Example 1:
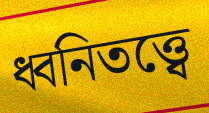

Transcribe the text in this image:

ধ্বনিতত্ত্বে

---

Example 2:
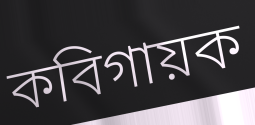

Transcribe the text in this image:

কবিগায়ক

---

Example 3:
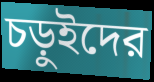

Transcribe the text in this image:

চড়ুইদের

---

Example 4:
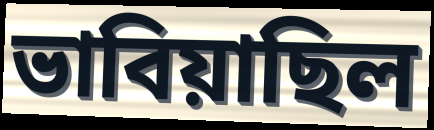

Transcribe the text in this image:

ভাবিয়াছিল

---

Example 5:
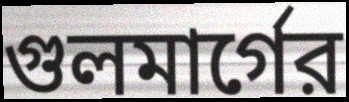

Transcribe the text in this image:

গুলমার্গের